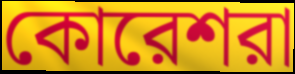
কোরেশরা